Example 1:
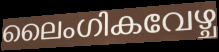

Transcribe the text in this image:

ലൈംഗികവേഴ്ച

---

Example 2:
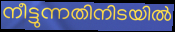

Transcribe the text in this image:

നീട്ടുന്നതിനിടയിൽ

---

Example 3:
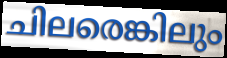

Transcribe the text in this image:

ചിലരെങ്കിലും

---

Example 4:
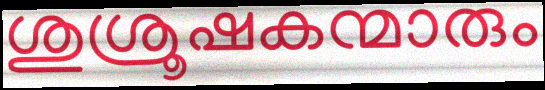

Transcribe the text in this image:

ശുശ്രൂഷകന്മാരും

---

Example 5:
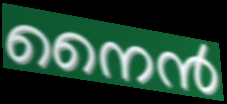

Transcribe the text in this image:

നൈൻ